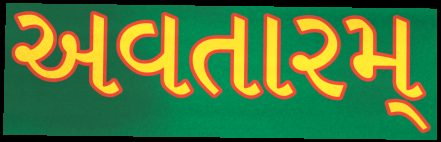
અવતારમ્